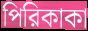
পিরিকাকা